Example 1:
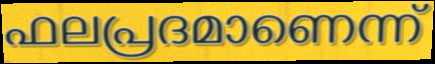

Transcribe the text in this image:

ഫലപ്രദമാണെന്ന്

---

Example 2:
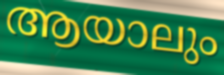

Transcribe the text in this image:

ആയാലും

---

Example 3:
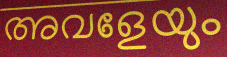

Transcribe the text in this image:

അവളേയും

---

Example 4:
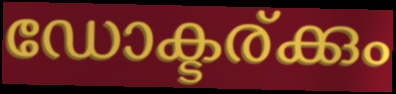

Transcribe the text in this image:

ഡോക്ടര്ക്കും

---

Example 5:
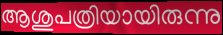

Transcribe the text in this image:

ആശുപത്രിയായിരുന്നു